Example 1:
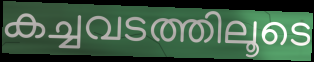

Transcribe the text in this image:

കച്ചവടത്തിലൂടെ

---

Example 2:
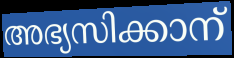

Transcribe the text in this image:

അഭ്യസിക്കാന്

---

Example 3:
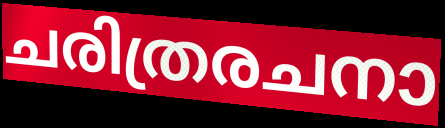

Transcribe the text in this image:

ചരിത്രരചനാ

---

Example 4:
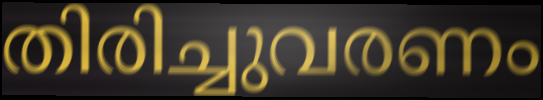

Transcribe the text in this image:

തിരിച്ചുവരണം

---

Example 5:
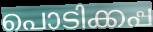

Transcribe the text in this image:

പൊടിക്കപ്പ